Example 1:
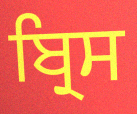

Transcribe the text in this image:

ਬ੍ਰਿਸ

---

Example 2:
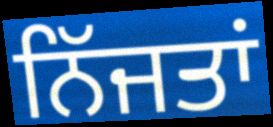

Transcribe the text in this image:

ਨਿੱਜਤਾਂ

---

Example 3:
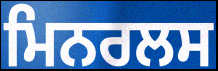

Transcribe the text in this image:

ਮਿਨਰਲਸ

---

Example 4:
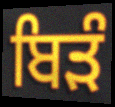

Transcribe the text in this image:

ਬਿੜੰ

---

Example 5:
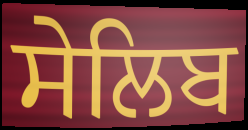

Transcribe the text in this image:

ਸੇਲਿਬ